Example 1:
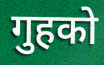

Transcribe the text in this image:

गुहको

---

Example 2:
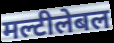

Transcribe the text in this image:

मल्टीलेबल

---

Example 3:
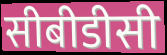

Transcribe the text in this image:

सीबीडीसी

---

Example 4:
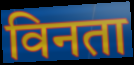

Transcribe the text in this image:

विनता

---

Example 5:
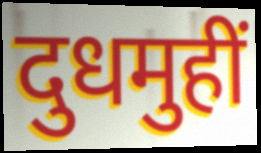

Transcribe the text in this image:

दुधमुहीं